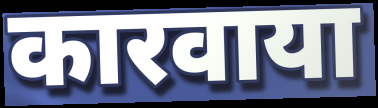
कारवाया